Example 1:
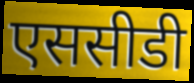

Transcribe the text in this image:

एससीडी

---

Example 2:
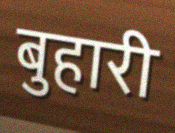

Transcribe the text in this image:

बुहारी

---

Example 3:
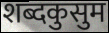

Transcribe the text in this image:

शब्दकुसुम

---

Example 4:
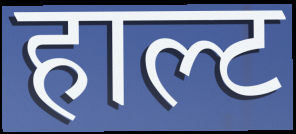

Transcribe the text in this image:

हाल्ट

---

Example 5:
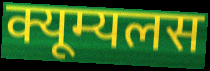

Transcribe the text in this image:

क्यूम्यलस